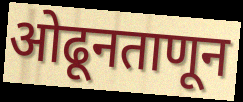
ओढूनताणून